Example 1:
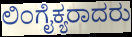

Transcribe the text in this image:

ಲಿಂಗೈಕ್ಯರಾದರು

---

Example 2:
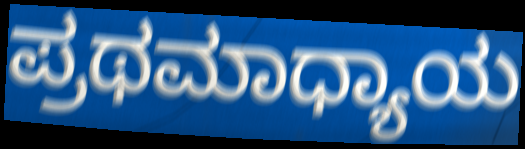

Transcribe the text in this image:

ಪ್ರಥಮಾಧ್ಯಾಯ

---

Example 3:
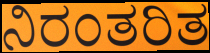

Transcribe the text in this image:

ನಿರಂತರಿತ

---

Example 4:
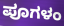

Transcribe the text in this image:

ಪೂಗಳಂ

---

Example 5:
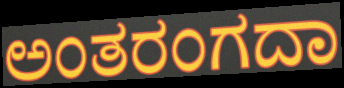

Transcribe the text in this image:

ಅಂತರಂಗದಾ